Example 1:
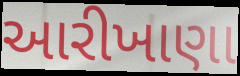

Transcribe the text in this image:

આરીખાણા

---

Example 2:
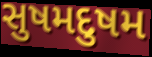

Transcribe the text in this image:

સુષમદુષમ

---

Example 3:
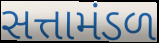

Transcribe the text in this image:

સત્તામંડળ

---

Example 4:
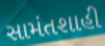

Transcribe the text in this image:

સામંતશાહી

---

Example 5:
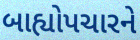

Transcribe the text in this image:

બાહ્યોપચારને